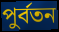
পুর্বতন